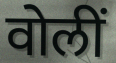
वोलीं